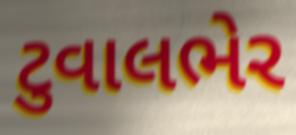
ટુવાલભેર